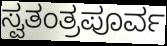
ಸ್ವತಂತ್ರಪೂರ್ವ